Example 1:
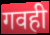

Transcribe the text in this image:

गवही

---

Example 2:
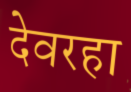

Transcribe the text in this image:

देवरहा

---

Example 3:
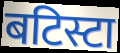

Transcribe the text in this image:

बटिस्टा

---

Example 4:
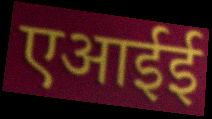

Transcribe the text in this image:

एआईई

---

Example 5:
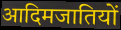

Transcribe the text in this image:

आदिमजातियों